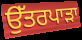
ਉੱਤਰਪਾੜਾ